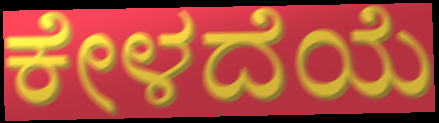
ಕೇಳದೆಯೆ